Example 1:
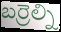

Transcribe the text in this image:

బర్రెల్ని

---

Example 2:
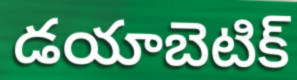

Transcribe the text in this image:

డయాబెటిక్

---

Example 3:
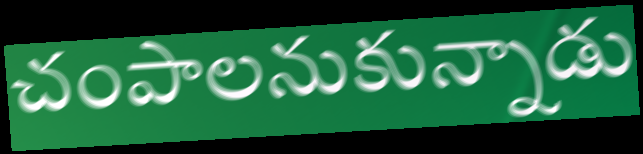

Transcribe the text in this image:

చంపాలనుకున్నాడు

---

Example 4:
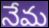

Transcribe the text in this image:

నేమ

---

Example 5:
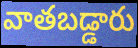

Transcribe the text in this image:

వాతబడ్డారు